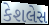
કેશલેસ